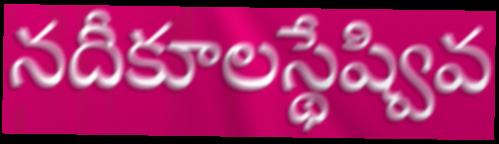
నదీకూలస్థేష్వివ